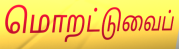
மொறட்டுவைப்